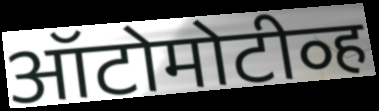
ऑटोमोटीव्ह